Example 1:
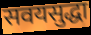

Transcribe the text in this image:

सवयसुद्धा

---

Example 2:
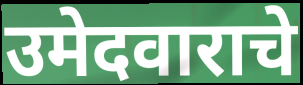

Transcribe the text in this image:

उमेदवाराचे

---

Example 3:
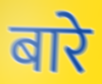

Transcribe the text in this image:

बारे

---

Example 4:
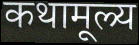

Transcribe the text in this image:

कथामूल्य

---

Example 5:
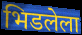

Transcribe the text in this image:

भिडलेला